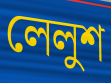
লেলুশ